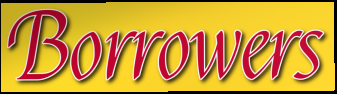
Borrowers